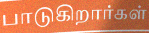
பாடுகிறார்கள்